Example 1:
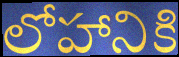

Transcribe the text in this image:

లోహానికి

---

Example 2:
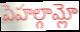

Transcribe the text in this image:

పెహల్గామ్లో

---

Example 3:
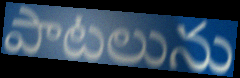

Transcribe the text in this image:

పాటలును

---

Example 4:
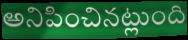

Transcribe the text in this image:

అనిపించినట్లుంది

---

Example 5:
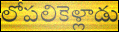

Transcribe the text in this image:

లోపలికెళ్లాడు